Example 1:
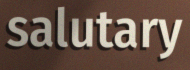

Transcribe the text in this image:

salutary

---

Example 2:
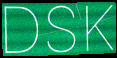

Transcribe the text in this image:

DSK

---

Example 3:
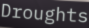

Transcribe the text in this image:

Droughts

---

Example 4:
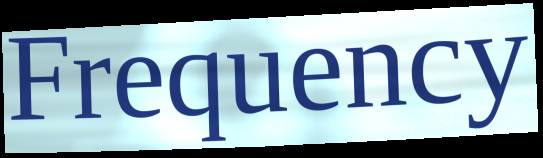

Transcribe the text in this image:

Frequency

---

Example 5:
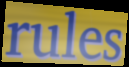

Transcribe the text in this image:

rules